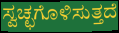
ಸ್ವಚ್ಛಗೊಳಿಸುತ್ತದೆ